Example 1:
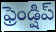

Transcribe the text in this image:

ఫ్రెండ్షిప్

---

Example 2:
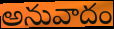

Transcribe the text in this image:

అనువాదం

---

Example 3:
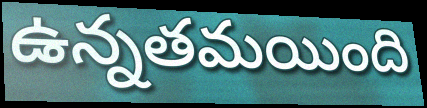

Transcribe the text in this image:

ఉన్నతమయింది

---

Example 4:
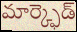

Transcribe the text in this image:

మార్క్ఫెడ్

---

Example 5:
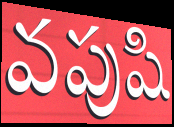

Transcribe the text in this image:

వపుషి